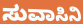
ಸುವಾಸಿನಿ